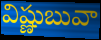
విష్ణుబువా